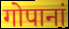
गोपानां